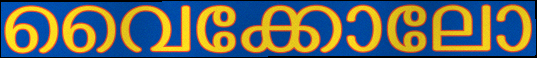
വൈക്കോലോ